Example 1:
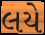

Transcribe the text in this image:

લયે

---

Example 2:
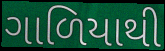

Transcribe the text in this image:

ગાળિયાથી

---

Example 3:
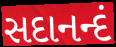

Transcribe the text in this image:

સદાનન્દં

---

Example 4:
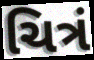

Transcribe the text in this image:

ચિત્રં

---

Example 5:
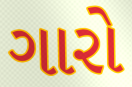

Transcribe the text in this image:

ગારો